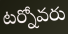
టర్నోవరు